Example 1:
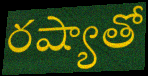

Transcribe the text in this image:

రష్యాతో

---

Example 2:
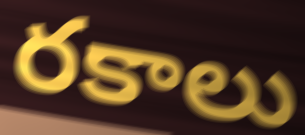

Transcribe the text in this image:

రకాలు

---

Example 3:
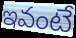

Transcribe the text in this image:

ఇవంటే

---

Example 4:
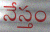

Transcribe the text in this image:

నేస్తం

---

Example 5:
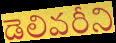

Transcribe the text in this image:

డెలివరీని